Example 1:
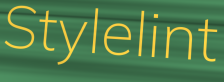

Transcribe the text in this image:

Stylelint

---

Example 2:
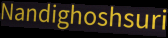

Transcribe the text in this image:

Nandighoshsuri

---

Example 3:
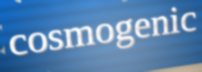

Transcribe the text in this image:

cosmogenic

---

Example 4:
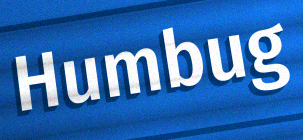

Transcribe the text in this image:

Humbug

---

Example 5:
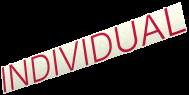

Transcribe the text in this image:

INDIVIDUAL